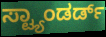
ಸ್ಟ್ಯಾಂಡರ್ಡ್